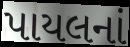
પાયલનાં